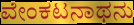
ವೇಂಕಟನಾಥನು